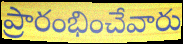
ప్రారంభించేవారు